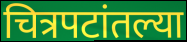
चित्रपटांतल्या